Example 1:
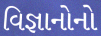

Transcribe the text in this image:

વિજ્ઞાનોનો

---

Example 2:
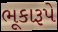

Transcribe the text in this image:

ભૂકારૂપે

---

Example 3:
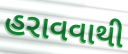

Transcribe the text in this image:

હરાવવાથી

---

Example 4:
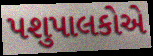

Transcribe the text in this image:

પશુપાલકોએ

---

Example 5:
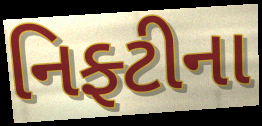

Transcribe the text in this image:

નિફ્ટીના